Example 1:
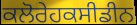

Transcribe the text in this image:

ਕਲੋਰੇਹਕਸੀਡੀਨ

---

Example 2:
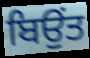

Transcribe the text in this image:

ਬਿਉਂਤ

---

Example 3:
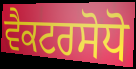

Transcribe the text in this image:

ਵੈਕਟਰਸੋਧੋ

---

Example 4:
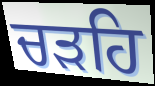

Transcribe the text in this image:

ਚੜਹਿ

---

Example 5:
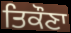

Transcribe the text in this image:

ਤਿਕੌਣਾ